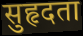
सुहृदता